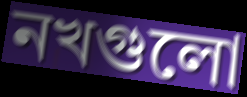
নখগুলো